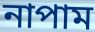
নাপাম